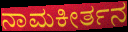
ನಾಮಕೀರ್ತನ